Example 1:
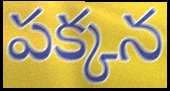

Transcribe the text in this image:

పక్కన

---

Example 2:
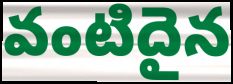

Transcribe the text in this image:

వంటిదైన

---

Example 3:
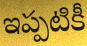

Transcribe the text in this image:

ఇప్పటికీ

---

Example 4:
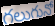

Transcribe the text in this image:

గలుగునో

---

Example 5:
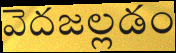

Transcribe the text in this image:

వెదజల్లడం